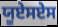
ਯੂਏਸਏਸ